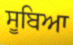
ਸੂਬਿਆ